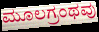
ಮೂಲಗ್ರಂಥವು